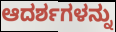
ಆದರ್ಶಗಳನ್ನು